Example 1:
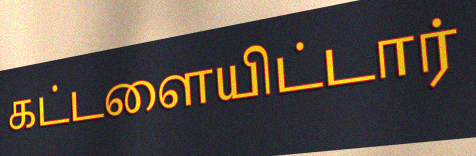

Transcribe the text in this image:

கட்டளையிட்டார்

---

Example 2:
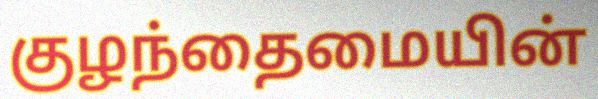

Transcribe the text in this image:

குழந்தைமையின்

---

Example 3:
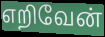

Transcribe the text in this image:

எறிவேன்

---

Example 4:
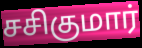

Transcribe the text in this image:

சசிகுமார்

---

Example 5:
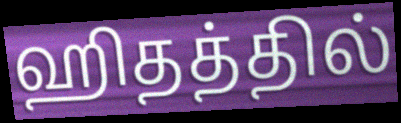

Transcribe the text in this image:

ஹிதத்தில்